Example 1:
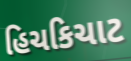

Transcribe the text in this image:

હિચકિચાટ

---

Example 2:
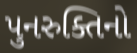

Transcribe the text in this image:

પુનરુક્તિનો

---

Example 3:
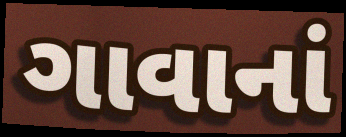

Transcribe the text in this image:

ગાવાનાં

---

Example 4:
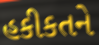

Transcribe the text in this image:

હકીકતને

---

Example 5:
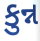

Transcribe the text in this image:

કુન્ન